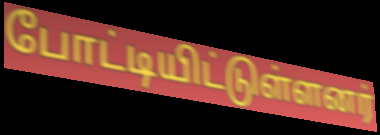
போட்டியிட்டுள்ளனர்